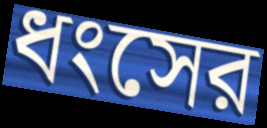
ধংসের